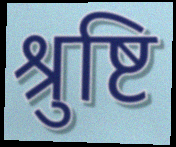
श्रुष्टि